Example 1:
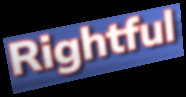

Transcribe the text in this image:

Rightful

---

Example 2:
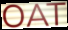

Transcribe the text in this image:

OAT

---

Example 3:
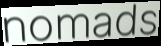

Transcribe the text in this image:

nomads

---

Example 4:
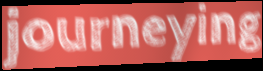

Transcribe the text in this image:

journeying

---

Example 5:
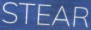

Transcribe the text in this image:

STEAR